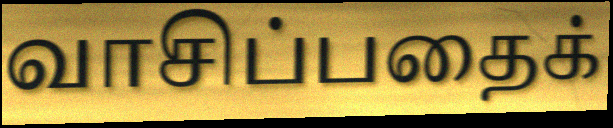
வாசிப்பதைக்